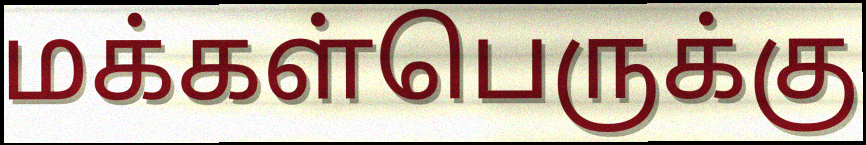
மக்கள்பெருக்கு